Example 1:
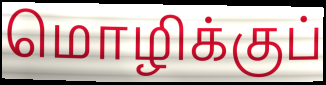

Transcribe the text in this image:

மொழிக்குப்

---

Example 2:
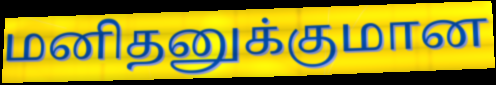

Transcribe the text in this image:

மனிதனுக்குமான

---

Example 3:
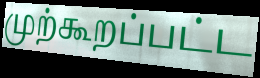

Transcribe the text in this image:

முற்கூறப்பட்ட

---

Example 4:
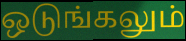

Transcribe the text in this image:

ஒடுங்கலும்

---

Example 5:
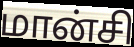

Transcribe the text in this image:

மான்சி